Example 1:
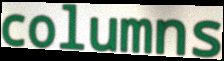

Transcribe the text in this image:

columns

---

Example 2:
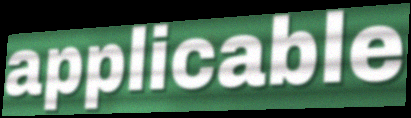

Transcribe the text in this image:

applicable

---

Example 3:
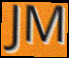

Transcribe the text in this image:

JM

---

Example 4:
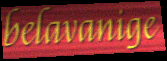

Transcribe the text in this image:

belavanige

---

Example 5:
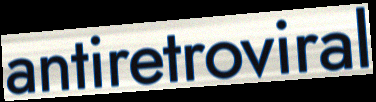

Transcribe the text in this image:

antiretroviral